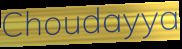
Choudayya